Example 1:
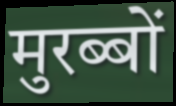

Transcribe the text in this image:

मुरब्बों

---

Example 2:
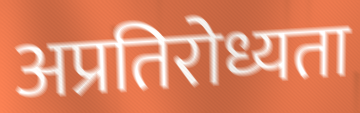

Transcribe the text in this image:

अप्रतिरोध्यता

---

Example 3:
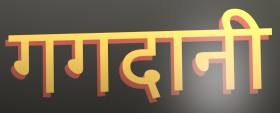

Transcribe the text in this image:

गगदानी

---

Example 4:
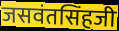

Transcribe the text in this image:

जसवंतसिंहजी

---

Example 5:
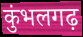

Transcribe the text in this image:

कुंभलगढ़